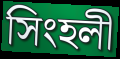
সিংহলী